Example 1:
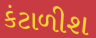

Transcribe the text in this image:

કંટાળીશ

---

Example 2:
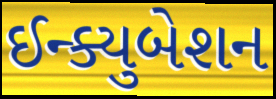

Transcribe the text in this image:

ઈન્ક્યુબેશન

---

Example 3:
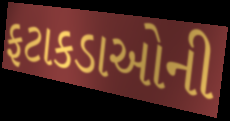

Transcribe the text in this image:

ફટાકડાઓની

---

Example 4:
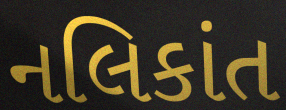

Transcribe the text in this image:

નલિકાંત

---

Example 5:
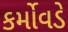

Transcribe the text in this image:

કર્મોવડે